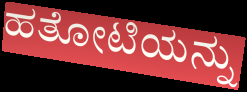
ಹತೋಟಿಯನ್ನು